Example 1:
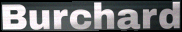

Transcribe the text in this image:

Burchard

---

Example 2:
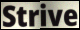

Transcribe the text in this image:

Strive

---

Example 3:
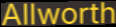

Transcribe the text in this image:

Allworth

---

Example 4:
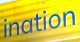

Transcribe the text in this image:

ination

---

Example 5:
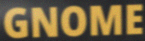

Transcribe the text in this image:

GNOME